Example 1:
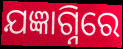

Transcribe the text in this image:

ଯଜ୍ଞାଗ୍ନିରେ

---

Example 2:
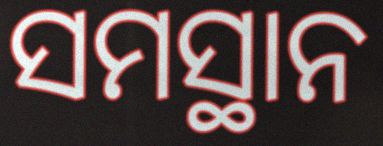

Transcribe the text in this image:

ସମସ୍ଥାନ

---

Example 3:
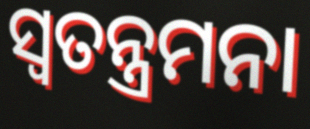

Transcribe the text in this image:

ସ୍ୱତନ୍ତ୍ରମନା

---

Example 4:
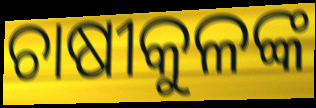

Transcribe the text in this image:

ଚାଷୀକୁଳଙ୍କ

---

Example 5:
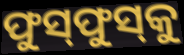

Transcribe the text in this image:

ଫୁସ୍‌ଫୁସ୍‌କୁ